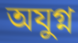
অযুগ্ন